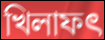
খিলাফৎ